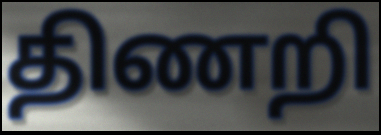
திணறி